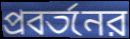
প্রবর্তনের